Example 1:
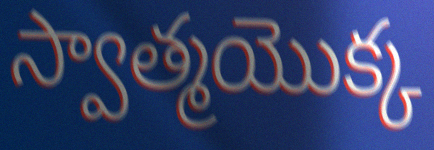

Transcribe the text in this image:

స్వాత్మయొక్క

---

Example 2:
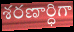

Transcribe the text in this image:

శరణార్ధిగా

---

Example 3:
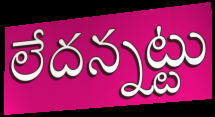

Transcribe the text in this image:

లేదన్నట్టు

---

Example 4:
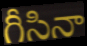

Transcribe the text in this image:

గీసినా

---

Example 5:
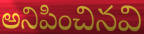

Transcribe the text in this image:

అనిపించినవి